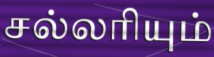
சல்லரியும்